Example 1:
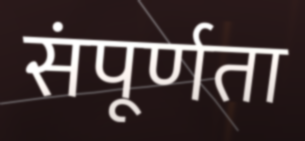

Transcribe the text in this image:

संपूर्णता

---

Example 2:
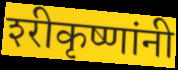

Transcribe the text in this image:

श्रीकृष्णांनी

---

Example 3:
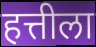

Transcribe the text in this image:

हत्तीला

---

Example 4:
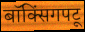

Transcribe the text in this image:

बॉक्सिंगपटू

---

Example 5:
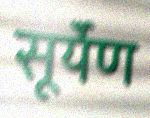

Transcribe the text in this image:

सूर्ये॑ण